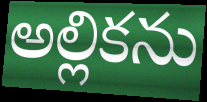
అల్లికను